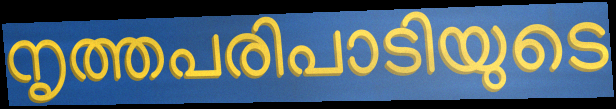
നൃത്തപരിപാടിയുടെ